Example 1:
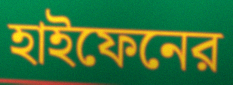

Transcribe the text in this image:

হাইফেনের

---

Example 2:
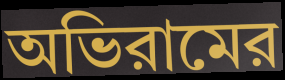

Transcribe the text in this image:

অভিরামের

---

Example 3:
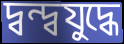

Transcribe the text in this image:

দ্বন্দ্বযুদ্ধে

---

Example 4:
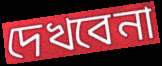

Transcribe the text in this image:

দেখবেনা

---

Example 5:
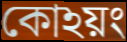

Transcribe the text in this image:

কোঽয়ং